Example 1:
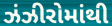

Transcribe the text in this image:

ઝંઝીરોમાંથી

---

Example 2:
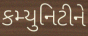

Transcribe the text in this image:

કમ્યુનિટીને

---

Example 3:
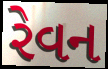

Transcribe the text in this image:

રેવન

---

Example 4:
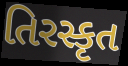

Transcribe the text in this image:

તિરસ્કૃત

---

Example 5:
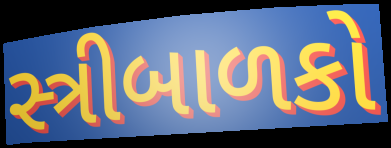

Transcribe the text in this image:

સ્ત્રીબાળકો